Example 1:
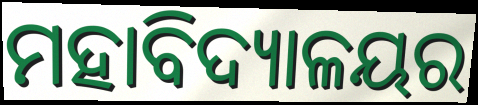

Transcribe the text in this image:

ମହାବିଦ୍ୟାଳୟର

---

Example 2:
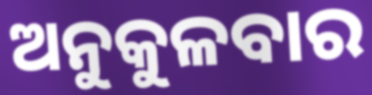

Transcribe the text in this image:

ଅନୁକୁଳବାର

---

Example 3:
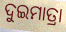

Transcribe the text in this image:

ଦୁଇମାତ୍ରା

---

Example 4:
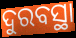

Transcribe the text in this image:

ଦୁରବସ୍ଥା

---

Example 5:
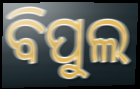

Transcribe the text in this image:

ବିପୁଲ